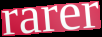
rarer